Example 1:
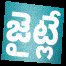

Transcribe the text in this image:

జైట్లే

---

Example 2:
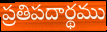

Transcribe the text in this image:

ప్రతిపదార్థము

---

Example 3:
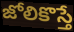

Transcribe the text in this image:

జోలికొస్తే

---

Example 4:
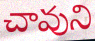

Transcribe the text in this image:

చావుని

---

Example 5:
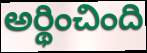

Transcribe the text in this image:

అర్థించింది